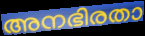
അനഭിരതാ